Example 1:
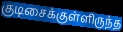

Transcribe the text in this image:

குடிசைக்குள்ளிருந்த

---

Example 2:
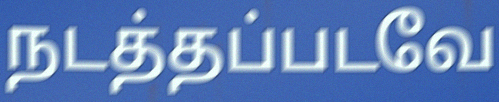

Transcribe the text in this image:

நடத்தப்படவே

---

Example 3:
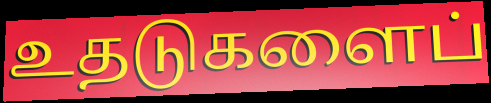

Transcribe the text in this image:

உதடுகளைப்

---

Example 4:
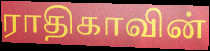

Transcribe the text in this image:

ராதிகாவின்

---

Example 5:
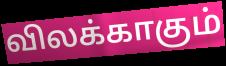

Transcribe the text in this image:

விலக்காகும்